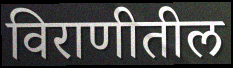
विराणीतील